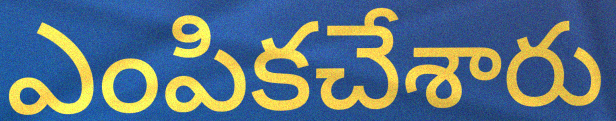
ఎంపికచేశారు